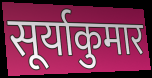
सूर्याकुमार